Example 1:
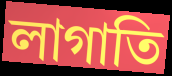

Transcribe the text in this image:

লাগাতি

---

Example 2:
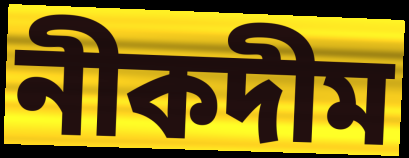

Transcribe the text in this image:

নীকদীম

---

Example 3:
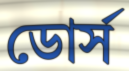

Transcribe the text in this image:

ডোর্স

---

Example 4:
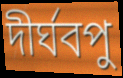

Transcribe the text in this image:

দীর্ঘবপু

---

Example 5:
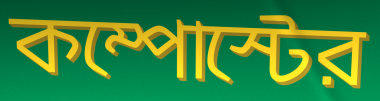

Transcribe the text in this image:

কম্পোস্টের